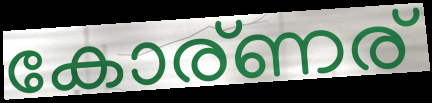
കോര്ണര്